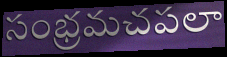
సంభ్రమచపలా